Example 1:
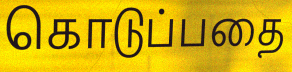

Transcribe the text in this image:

கொடுப்பதை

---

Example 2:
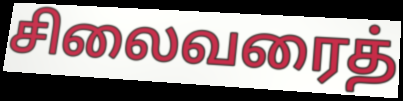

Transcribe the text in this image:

சிலைவரைத்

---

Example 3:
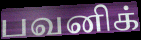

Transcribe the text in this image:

பவனிக்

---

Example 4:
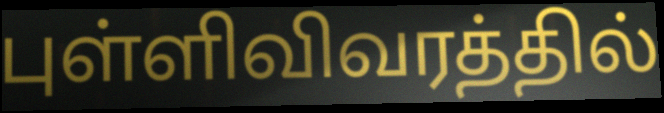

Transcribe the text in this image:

புள்ளிவிவரத்தில்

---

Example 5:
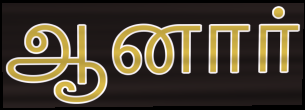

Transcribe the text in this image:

ஆனார்